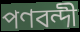
পণবন্দী